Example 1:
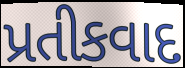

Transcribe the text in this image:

પ્રતીકવાદ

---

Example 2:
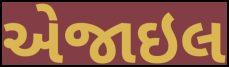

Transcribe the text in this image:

એજાઇલ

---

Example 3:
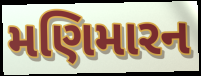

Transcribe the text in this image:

મણિમારન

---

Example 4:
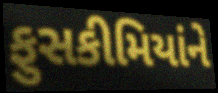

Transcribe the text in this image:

ફુસકીમિયાંને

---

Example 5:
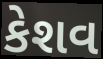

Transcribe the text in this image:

કેશવ